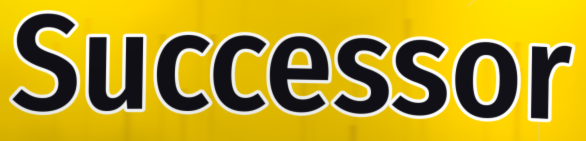
Successor